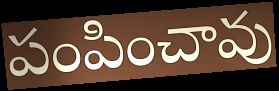
పంపించావు